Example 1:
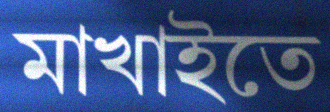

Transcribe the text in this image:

মাখাইতে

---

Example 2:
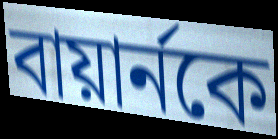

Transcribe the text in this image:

বায়ার্নকে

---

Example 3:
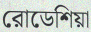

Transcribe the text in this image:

রোডেশিয়া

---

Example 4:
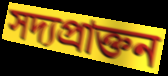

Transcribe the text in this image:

সদ্যপ্রাক্তন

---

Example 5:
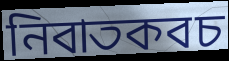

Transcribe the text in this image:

নিবাতকবচ